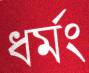
ধর্মং